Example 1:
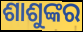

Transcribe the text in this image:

ଶାଶୁଙ୍କର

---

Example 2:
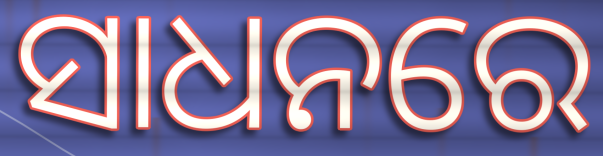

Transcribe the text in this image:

ସାଧନରେ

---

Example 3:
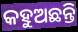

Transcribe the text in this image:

କହୁଅଛନ୍ତି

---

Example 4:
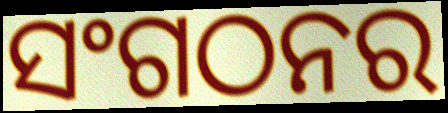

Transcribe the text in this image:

ସଂଗଠନର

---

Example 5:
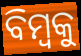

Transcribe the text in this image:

ବିମ୍ବକୁ